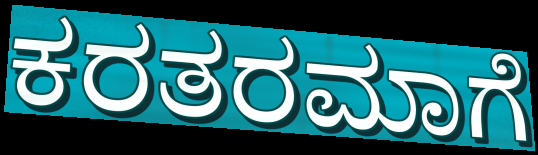
ಕರತರಮಾಗೆ